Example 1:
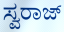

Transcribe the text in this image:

ಸ್ವರಾಜ್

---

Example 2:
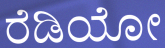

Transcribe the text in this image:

ರೆಡಿಯೋ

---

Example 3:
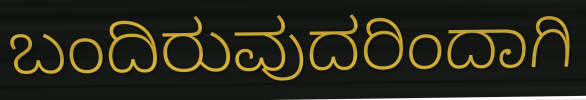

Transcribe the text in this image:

ಬಂದಿರುವುದರಿಂದಾಗಿ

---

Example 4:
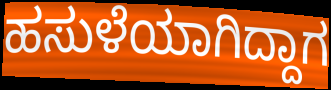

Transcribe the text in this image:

ಹಸುಳೆಯಾಗಿದ್ದಾಗ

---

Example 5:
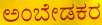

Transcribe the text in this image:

ಅಂಬೇಡಕರ